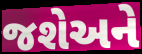
જશેઅને